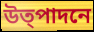
উত্পাদনে